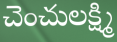
చెంచులక్ష్మి